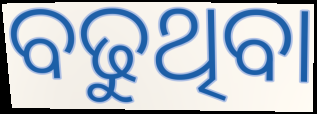
ବଢୁଥିବା